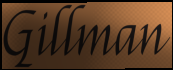
Gillman